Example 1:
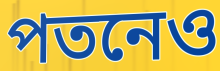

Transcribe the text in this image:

পতনেও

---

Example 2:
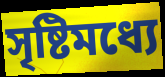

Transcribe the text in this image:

সৃষ্টিমধ্যে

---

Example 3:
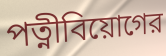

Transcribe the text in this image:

পত্নীবিয়োগের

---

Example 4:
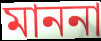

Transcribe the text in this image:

মাননা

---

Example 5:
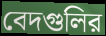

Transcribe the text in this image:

বেদগুলির